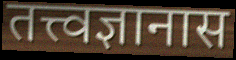
तत्त्वज्ञानास